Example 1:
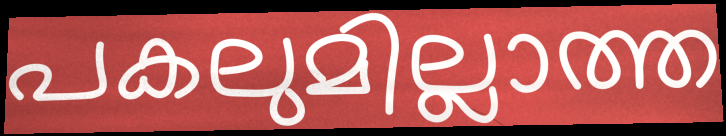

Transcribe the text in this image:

പകലുമില്ലാത്ത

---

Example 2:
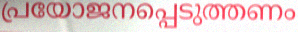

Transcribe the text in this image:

പ്രയോജനപ്പെടുത്തണം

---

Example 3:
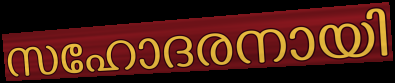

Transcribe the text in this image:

സഹോദരനായി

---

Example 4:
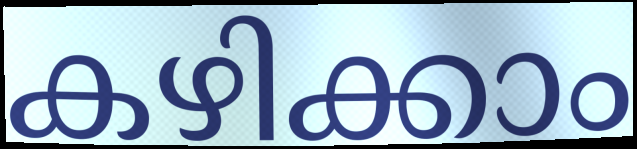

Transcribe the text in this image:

കഴിക്കാം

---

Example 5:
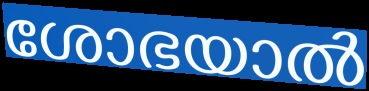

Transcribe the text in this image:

ശോഭയാൽ